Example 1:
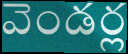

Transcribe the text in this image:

వెండర్ల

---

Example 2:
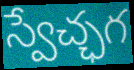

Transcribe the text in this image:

స్వేచ్ఛగ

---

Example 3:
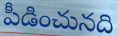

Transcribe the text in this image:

పీడించునది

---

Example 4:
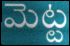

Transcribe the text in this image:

మెట్ట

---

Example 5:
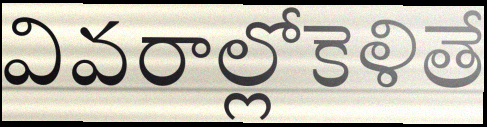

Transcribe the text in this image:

వివరాల్లోకెళితే